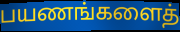
பயணங்களைத்